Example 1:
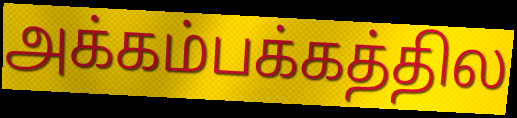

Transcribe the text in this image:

அக்கம்பக்கத்தில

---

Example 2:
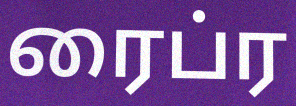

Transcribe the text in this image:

ரைப்ர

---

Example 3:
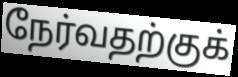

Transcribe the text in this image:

நேர்வதற்குக்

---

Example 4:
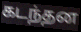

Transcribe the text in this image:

கடந்தன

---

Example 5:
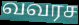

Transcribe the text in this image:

வவரச